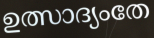
ഉത്സാദ്യംതേ